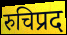
रुचिप्रद